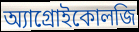
অ্যাগ্রোইকোলজি